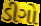
ડીગો